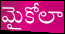
మైకోలా